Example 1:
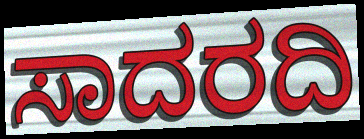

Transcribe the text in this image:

ಸಾದರದಿ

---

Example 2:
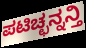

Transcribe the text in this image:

ಪಟಿಚ್ಛನ್ನನ್ತಿ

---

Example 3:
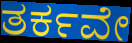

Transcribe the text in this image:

ತರ್ಕವೇ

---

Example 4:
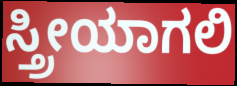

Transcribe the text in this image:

ಸ್ತ್ರೀಯಾಗಲಿ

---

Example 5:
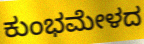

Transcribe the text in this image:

ಕುಂಭಮೇಳದ